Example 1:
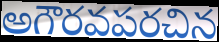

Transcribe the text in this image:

అగౌరవపరచిన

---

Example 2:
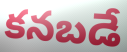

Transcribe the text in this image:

కనబడే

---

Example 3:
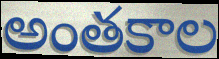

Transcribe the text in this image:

అంతకాల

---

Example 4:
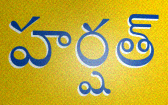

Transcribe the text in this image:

హర్షత్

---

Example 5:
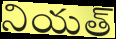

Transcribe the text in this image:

నియత్